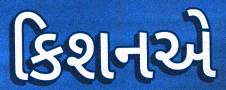
કિશનએ